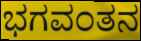
ಭಗವಂತನ